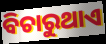
ବିଚାରୁଥାଏ